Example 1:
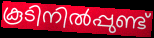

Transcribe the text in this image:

കൂടിനിൽപ്പുണ്ട്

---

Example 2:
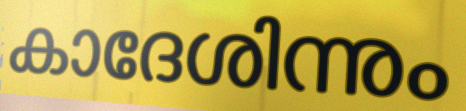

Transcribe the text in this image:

കാദേശിന്നും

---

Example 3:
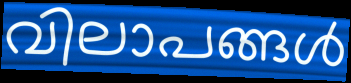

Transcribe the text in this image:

വിലാപങ്ങൾ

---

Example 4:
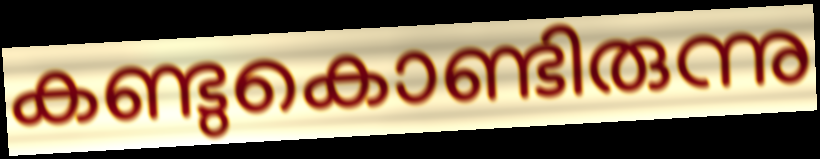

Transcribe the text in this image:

കണ്ടുകൊണ്ടിരുന്നു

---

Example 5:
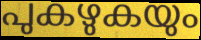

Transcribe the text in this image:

പുകഴുകയും